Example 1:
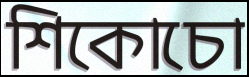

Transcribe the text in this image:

শিকোচো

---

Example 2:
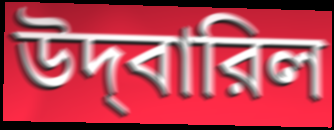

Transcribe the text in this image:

উদ্‌বারিল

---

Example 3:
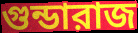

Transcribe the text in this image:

গুন্ডারাজ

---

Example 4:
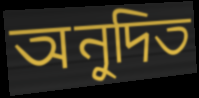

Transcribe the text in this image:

অনুদিত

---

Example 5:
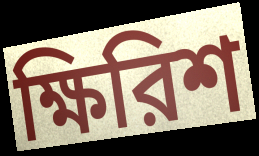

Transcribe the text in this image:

ক্ষিরিশ